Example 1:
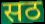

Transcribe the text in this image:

सठ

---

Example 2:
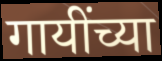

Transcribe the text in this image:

गायींच्या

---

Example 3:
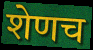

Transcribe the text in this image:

शेणच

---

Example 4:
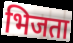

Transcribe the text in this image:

भिजता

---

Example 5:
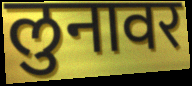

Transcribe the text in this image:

लुनावर